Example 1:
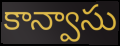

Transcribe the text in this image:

కాన్వాసు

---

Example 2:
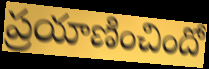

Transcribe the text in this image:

ప్రయాణించిందో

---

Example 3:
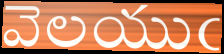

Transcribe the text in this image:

వెలయుఁ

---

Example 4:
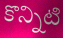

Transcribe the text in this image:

కొన్నిటి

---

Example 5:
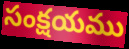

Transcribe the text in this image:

సంక్షయము